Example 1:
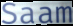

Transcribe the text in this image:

Saam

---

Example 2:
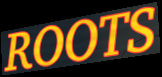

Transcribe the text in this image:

ROOTS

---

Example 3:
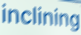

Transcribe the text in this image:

inclining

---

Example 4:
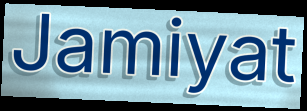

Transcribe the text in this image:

Jamiyat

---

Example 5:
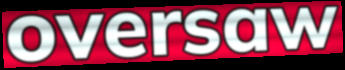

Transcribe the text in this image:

oversaw